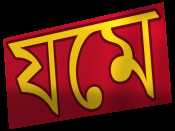
যমে